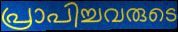
പ്രാപിച്ചവരുടെ